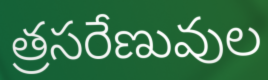
త్రసరేణువుల